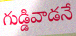
గుడ్డివాడనే